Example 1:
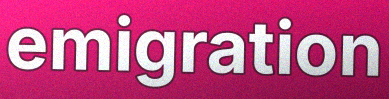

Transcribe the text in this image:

emigration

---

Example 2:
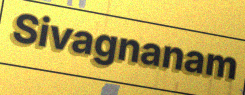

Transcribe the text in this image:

Sivagnanam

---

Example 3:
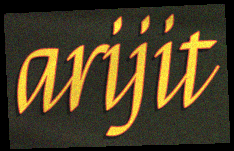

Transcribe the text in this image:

arijit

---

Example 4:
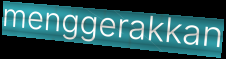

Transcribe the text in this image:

menggerakkan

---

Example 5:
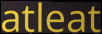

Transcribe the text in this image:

atleat